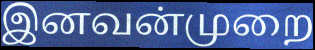
இனவன்முறை